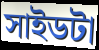
সাইডটা